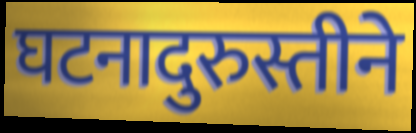
घटनादुरुस्तीने